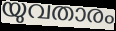
യുവതാരം